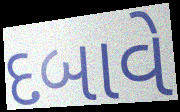
દબાવે